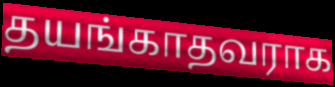
தயங்காதவராக